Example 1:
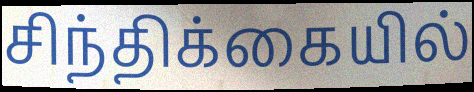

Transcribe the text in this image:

சிந்திக்கையில்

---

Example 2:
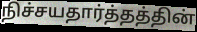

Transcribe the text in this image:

நிச்சயதார்த்தத்தின்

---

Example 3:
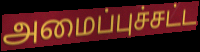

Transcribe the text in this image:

அமைப்புச்சட்ட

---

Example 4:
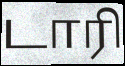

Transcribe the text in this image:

டாரி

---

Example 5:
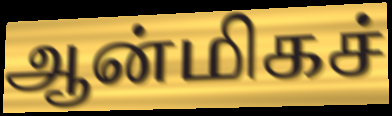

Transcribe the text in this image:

ஆன்மிகச்